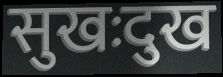
सुखःदुख